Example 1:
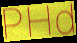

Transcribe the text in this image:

PHd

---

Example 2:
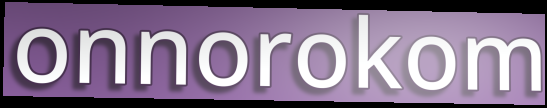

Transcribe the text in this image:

onnorokom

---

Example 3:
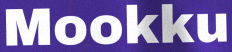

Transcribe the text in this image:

Mookku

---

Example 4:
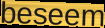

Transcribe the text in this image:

beseem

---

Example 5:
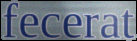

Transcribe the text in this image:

fecerat